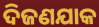
ଦିଜଣଯାକ